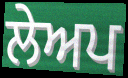
ਲੇਅਪ